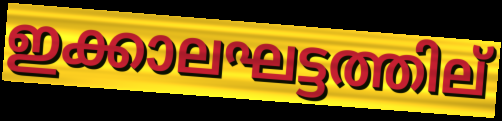
ഇക്കാലഘട്ടത്തില്